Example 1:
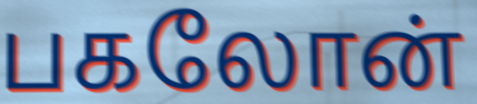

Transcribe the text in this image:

பகலோன்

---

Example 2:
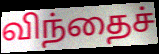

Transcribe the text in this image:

விந்தைச்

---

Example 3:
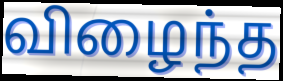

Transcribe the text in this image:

விழைந்த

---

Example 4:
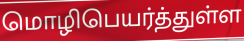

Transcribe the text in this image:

மொழிபெயர்த்துள்ள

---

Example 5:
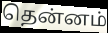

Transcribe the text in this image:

தென்னம்